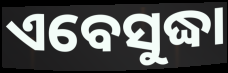
ଏବେସୁଦ୍ଧା